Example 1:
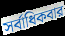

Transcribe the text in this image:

সর্বাধিকবার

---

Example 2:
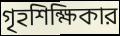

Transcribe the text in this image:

গৃহশিক্ষিকার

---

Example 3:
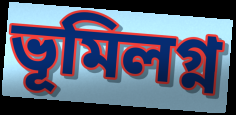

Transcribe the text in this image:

ভূমিলগ্ন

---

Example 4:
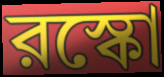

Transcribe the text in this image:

রস্কো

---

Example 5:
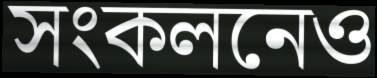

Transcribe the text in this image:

সংকলনেও